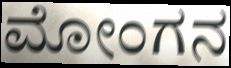
ಮೋಂಗನ